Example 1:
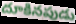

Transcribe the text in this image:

దూకినపుడు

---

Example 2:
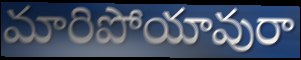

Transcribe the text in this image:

మారిపోయావురా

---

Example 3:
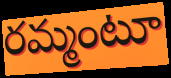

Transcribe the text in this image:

రమ్మంటూ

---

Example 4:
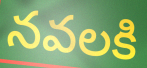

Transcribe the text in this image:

నవలకి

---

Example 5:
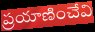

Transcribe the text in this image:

ప్రయాణించేవి